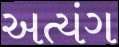
અત્યંગ